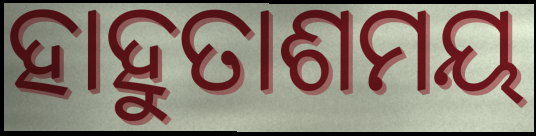
ହାହୁତାଶମୟ